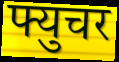
फ्युचर